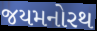
જયમનોરથ